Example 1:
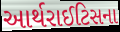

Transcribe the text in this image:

આર્થરાઈટિસના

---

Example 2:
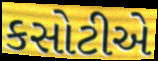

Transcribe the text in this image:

કસોટીએ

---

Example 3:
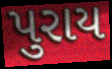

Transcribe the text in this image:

પુરાય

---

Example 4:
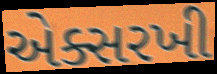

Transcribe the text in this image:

એક્સરખી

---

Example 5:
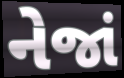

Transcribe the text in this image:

નેજાં